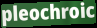
pleochroic